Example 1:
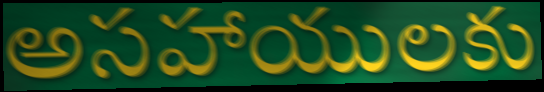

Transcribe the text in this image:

అసహాయులకు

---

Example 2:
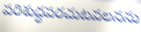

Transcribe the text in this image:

పరిశుద్ధపరచుటవలనను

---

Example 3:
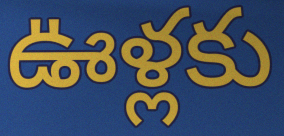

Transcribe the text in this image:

ఊళ్లకు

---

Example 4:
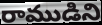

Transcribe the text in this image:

రాముడిని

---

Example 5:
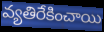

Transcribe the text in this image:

వ్యతిరేకించాయి